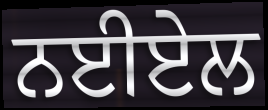
ਨਈਏਲ